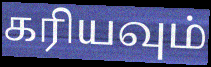
கரியவும்